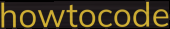
howtocode